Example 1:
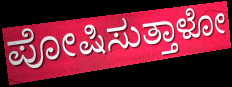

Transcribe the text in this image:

ಪೋಷಿಸುತ್ತಾಳೋ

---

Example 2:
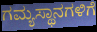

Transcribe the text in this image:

ಗಮ್ಯಸ್ಥಾನಗಳಿಗೆ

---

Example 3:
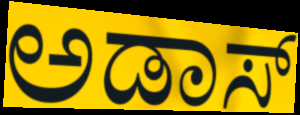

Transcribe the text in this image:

ಅಡಾಸ್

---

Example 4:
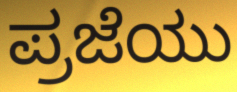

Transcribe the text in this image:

ಪ್ರಜೆಯು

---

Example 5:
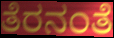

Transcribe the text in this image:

ತೆರನಂತೆ